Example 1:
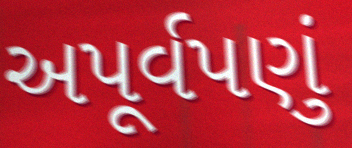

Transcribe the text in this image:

અપૂર્વપણું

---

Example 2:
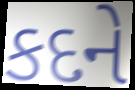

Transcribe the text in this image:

કદને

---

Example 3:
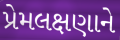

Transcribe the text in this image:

પ્રેમલક્ષણાને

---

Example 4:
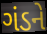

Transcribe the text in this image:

ગંડને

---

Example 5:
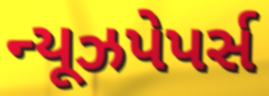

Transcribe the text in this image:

ન્યૂઝપેપર્સ